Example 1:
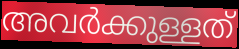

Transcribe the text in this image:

അവർക്കുള്ളത്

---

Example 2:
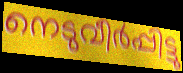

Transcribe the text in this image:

നെടുവീർപ്പിട്ടു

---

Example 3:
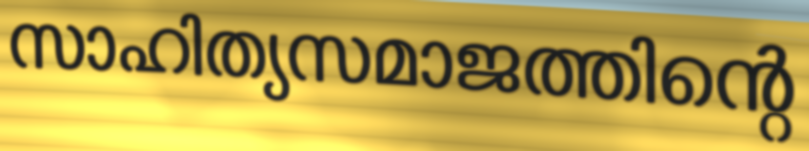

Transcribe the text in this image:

സാഹിത്യസമാജത്തിന്റെ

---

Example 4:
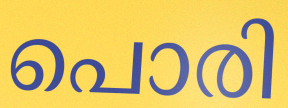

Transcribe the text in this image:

പൊരി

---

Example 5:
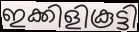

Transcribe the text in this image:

ഇക്കിളികൂട്ടി